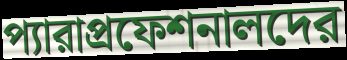
প্যারাপ্রফেশনালদের